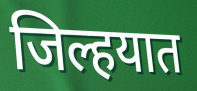
जिल्हयात